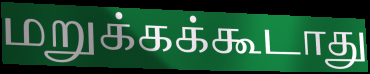
மறுக்கக்கூடாது